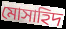
মোসাহিদ